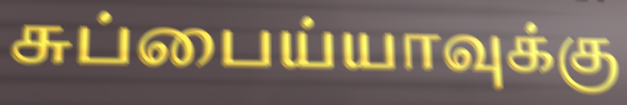
சுப்பைய்யாவுக்கு